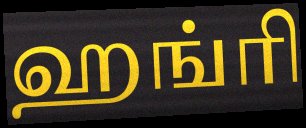
ஹங்ரி